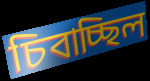
চিবাচ্ছিল